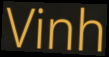
Vinh